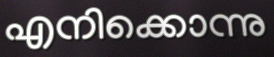
എനിക്കൊന്നു